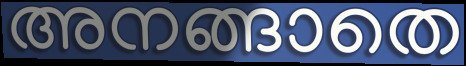
അനങ്ങാതെ